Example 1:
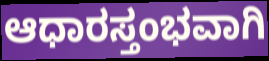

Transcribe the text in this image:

ಆಧಾರಸ್ತಂಭವಾಗಿ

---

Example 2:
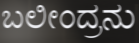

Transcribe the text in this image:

ಬಲೀಂದ್ರನು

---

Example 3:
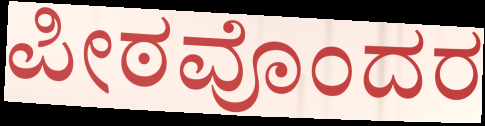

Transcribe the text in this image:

ಪೀಠವೊಂದರ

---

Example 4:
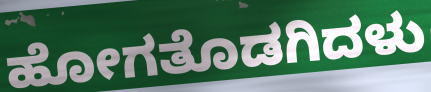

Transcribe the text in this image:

ಹೋಗತೊಡಗಿದಳು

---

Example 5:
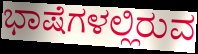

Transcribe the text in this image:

ಭಾಷೆಗಳಲ್ಲಿರುವ